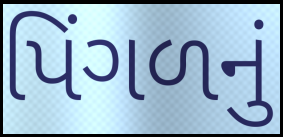
પિંગળનું